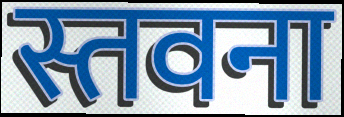
स्तवना